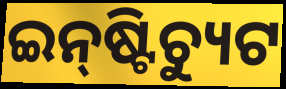
ଇନ୍‌ଷ୍ଟିଚ୍ୟୁଟ